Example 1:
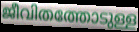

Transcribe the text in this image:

ജീവിതത്തോടുള്ള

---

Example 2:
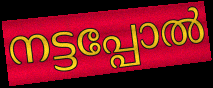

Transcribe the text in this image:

നട്ടപ്പോൽ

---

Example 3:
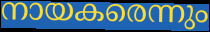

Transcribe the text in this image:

നായകരെന്നും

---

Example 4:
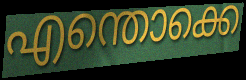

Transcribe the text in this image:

എന്തൊക്കെ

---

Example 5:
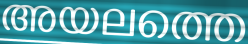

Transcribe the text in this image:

അയലത്തെ